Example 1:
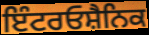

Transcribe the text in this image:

ਇੰਟਰਓਸ਼ੈਨਿਕ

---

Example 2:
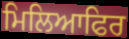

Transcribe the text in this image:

ਮਿਲਿਆਫਿਰ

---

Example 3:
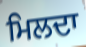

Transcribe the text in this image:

ਮਿਲਦਾ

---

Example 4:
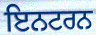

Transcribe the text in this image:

ਇਨਟਰਨ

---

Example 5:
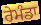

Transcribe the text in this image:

ਰੇਮੰਡਾ